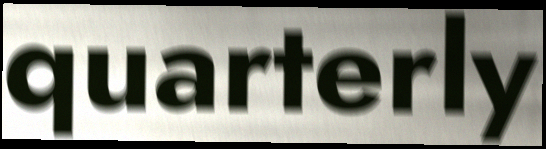
quarterly